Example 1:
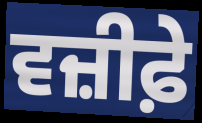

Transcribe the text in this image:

ਵਜ਼ੀਫ਼ੇ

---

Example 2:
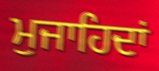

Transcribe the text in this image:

ਮੁਜਾਹਿਦਾਂ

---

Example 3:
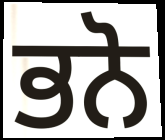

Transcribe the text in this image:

ਭਨੋ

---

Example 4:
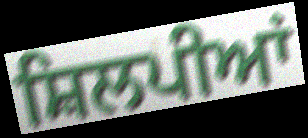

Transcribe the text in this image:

ਸ਼ਿਲਪੀਆਂ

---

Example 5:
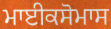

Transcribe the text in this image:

ਮਾਈਕਸੋਮਾਸ